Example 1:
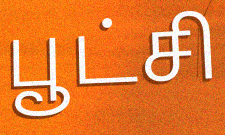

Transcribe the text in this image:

பூட்சி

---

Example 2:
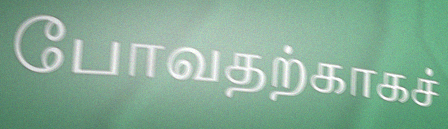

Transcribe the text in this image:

போவதற்காகச்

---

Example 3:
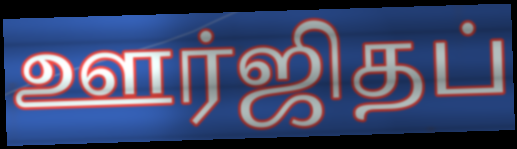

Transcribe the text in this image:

ஊர்ஜிதப்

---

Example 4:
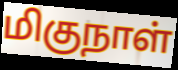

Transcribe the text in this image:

மிகுநாள்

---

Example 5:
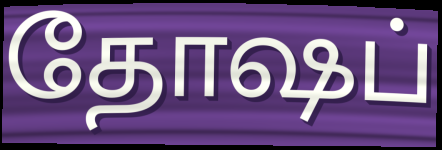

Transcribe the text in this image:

தோஷப்